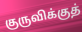
குருவிக்குத்